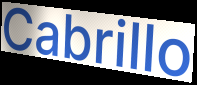
Cabrillo